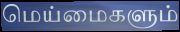
மெய்மைகளும்